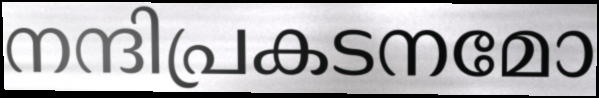
നന്ദിപ്രകടനമോ